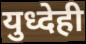
युध्देही